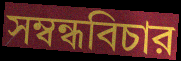
সম্বন্ধবিচার